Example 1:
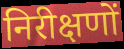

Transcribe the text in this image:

निरीक्षणों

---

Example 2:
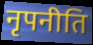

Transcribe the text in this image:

नृपनीति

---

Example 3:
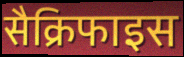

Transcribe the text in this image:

सैक्रिफाइस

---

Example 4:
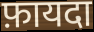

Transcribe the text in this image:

फ़ायदा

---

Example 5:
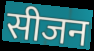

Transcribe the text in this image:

सीजन